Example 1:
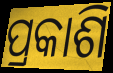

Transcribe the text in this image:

ପ୍ରକାଶି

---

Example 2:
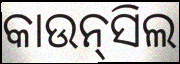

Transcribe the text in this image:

କାଉନ୍‍ସିଲ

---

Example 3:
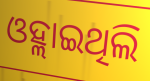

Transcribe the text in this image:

ଓହ୍ଲାଇଥିଲି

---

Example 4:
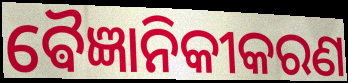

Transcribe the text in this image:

ଵୈଜ୍ଞାନିକୀକରଣ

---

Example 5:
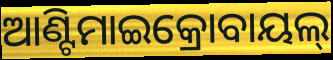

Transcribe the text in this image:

ଆଣ୍ଟିମାଇକ୍ରୋବାୟଲ୍